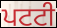
ਪਟਟੀ